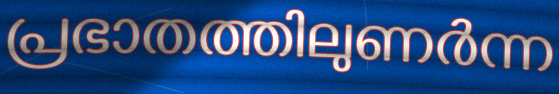
പ്രഭാതത്തിലുണർന്ന